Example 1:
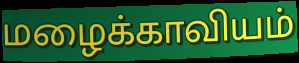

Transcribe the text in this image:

மழைக்காவியம்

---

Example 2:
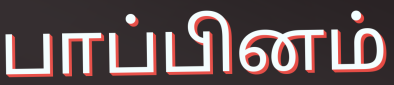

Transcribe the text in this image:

பாப்பினம்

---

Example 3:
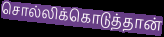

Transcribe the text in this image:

சொல்லிக்கொடுத்தான்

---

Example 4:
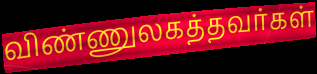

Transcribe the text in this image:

விண்ணுலகத்தவர்கள்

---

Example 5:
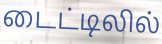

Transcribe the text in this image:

டைட்டிலில்